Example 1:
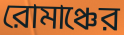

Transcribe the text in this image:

রোমাঞ্চের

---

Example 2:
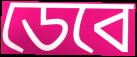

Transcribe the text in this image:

ডেবে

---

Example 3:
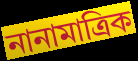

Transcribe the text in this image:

নানামাত্রিক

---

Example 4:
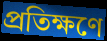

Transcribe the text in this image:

প্রতিক্ষণে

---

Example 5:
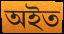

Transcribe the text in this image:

অইত